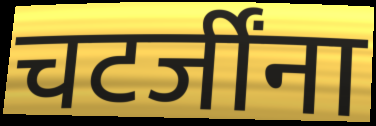
चटर्जींना